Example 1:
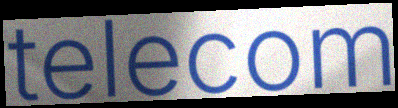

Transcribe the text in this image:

telecom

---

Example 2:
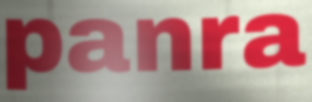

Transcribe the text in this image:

panra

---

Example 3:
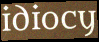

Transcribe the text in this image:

idiocy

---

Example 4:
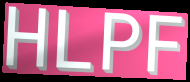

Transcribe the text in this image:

HLPF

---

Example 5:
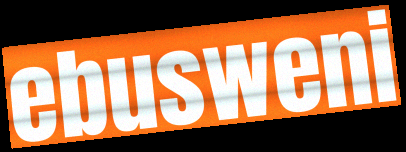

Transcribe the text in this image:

ebusweni